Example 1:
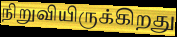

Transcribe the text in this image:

நிறுவியிருக்கிறது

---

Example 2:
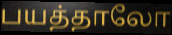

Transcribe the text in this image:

பயத்தாலோ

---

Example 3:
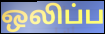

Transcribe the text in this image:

ஒலிப்ப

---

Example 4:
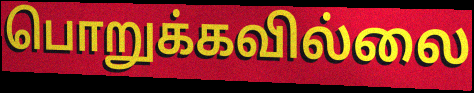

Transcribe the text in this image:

பொறுக்கவில்லை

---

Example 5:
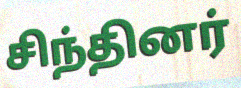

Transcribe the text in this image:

சிந்தினர்